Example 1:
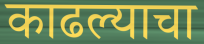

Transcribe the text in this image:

काढल्याचा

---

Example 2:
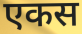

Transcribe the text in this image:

एकस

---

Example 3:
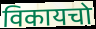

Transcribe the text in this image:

विकायचो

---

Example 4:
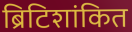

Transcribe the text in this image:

ब्रिटिशांकित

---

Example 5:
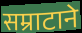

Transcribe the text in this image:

सम्राटाने